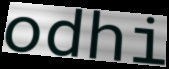
odhi